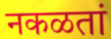
नकळतां